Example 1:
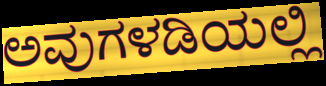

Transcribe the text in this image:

ಅವುಗಳಡಿಯಲ್ಲಿ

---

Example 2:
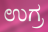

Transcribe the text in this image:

ಉಗ್ರ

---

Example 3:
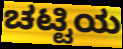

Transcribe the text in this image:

ಚಟ್ಟಿಯ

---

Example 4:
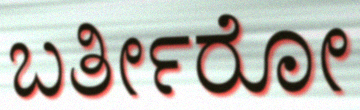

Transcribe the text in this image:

ಬರ್ತೀರೋ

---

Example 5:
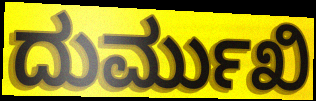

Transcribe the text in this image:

ದುರ್ಮುಖಿ